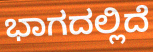
ಭಾಗದಲ್ಲಿದೆ